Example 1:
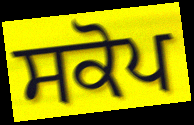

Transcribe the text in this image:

ਸਕੋਪ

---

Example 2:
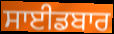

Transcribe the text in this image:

ਸਾਈਡਬਾਰ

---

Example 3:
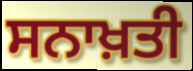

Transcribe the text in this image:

ਸਨਾਖ਼ਤੀ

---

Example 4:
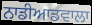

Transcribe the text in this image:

ਨਾਡੀਆਡਵਾਲਾ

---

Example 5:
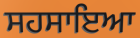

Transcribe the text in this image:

ਸਹਸਾਇਆ